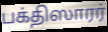
பக்திஸாரர்